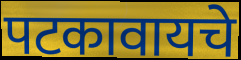
पटकावायचे